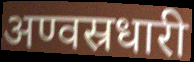
अण्वस्रधारी